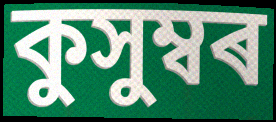
কুসুম্বৰ